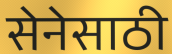
सेनेसाठी